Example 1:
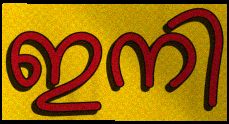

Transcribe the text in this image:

ഇനി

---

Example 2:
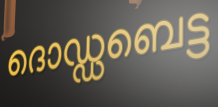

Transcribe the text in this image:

ദൊഡ്ഡബെട്ട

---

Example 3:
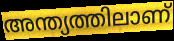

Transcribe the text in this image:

അന്ത്യത്തിലാണ്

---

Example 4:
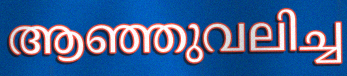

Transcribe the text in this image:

ആഞ്ഞുവലിച്ച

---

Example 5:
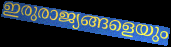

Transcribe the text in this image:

ഇരുരാജ്യങ്ങളെയും